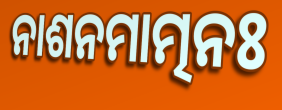
ନାଶନମାତ୍ମନଃ